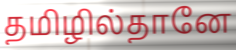
தமிழில்தானே